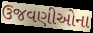
ઉજવણીઓના